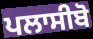
ਪਲਾਸੀਬੋ